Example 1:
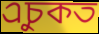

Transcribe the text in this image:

এচুকত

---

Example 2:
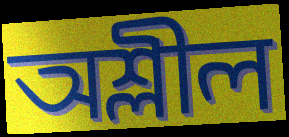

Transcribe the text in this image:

অশ্লীল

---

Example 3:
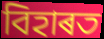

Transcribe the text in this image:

বিহাৰত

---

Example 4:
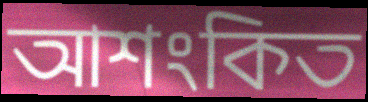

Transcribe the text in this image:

আশংকিত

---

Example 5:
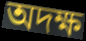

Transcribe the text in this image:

অদক্ষ